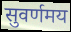
सुवर्णमय